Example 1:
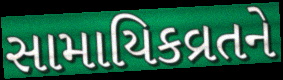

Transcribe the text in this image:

સામાયિકવ્રતને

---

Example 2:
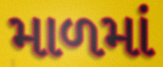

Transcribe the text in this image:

માળમાં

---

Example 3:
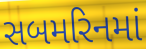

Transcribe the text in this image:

સબમરિનમાં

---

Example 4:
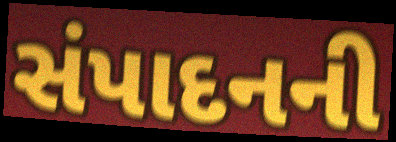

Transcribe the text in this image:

સંપાદનની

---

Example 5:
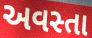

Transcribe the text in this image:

અવસ્તા